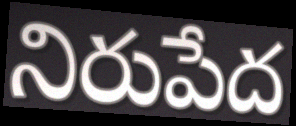
నిరుపేద